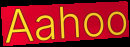
Aahoo